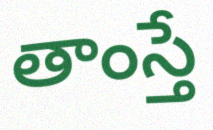
తాంస్తే